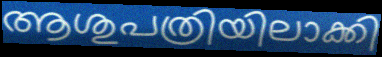
ആശുപത്രിയിലാക്കി